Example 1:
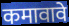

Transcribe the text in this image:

कमावावे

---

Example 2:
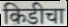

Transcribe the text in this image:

किडीचा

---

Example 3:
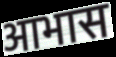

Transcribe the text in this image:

आभास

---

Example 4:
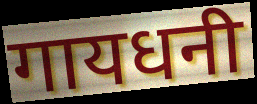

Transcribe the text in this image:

गायधनी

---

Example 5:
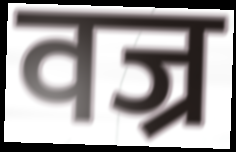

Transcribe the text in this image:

वज्र